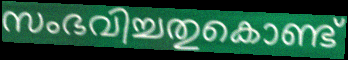
സംഭവിച്ചതുകൊണ്ട്